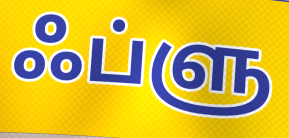
ஃப்ளு